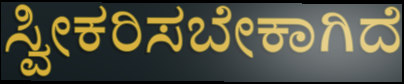
ಸ್ವೀಕರಿಸಬೇಕಾಗಿದೆ